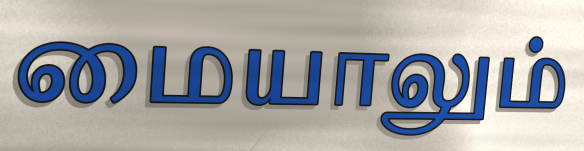
மையாலும்